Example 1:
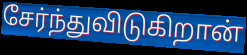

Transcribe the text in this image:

சேர்ந்துவிடுகிறான்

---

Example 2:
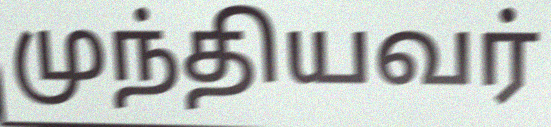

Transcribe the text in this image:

முந்தியவர்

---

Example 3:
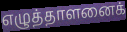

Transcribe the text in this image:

எழுத்தாளனைக்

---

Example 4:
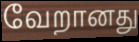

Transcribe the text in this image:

வேறானது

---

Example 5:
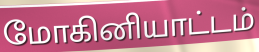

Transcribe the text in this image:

மோகினியாட்டம்